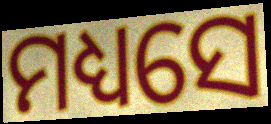
ମଧ୍ୟସେ